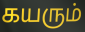
கயரும்